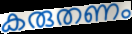
കരുതണം